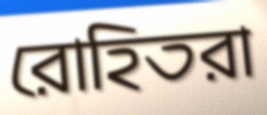
রোহিতরা